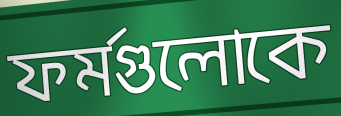
ফর্মগুলোকে